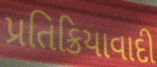
પ્રતિક્રિયાવાદી